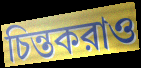
চিন্তকরাও